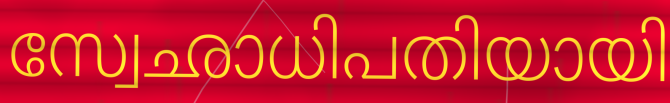
സ്വേഛാധിപതിയായി